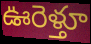
ఊరెళ్తూ